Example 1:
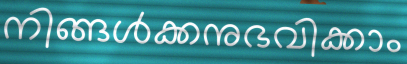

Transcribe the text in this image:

നിങ്ങൾക്കനുഭവിക്കാം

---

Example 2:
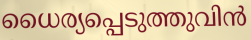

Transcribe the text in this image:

ധൈര്യപ്പെടുത്തുവിൻ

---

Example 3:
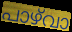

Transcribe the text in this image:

പാഴ്‌വാ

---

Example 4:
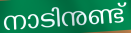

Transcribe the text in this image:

നാടിനുണ്ട്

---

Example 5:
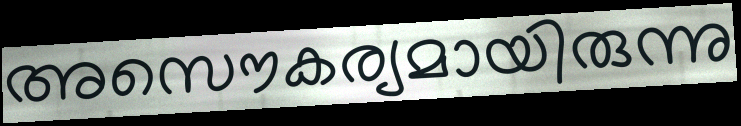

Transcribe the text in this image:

അസൌകര്യമായിരുന്നു